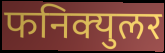
फनिक्युलर